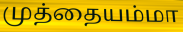
முத்தையம்மா